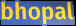
bhopal